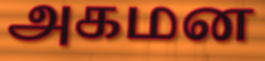
அகமன